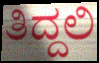
ತಿದ್ದಲಿ